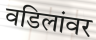
वडिलांवर